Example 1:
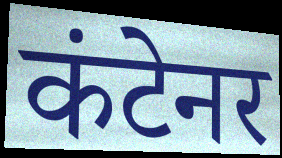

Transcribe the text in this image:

कंटेनर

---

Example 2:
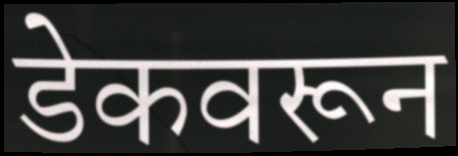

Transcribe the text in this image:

डेकवरून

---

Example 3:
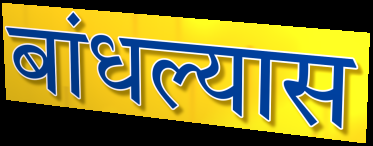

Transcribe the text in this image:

बांधल्यास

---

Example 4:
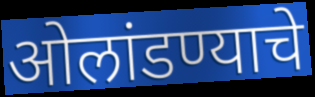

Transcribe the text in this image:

ओलांडण्याचे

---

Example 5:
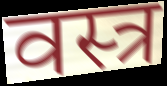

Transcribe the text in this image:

वस्त्र